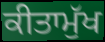
ਕੀਤਾਮੁੱਖ